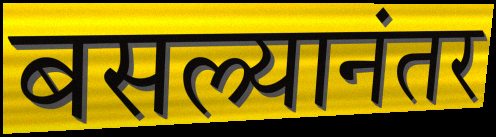
बसल्यानंतर